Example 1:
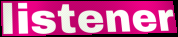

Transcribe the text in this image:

listener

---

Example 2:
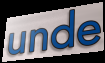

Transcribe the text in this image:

unde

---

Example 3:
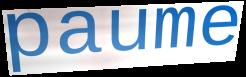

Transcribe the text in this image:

paume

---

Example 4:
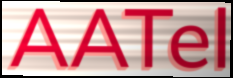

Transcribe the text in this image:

AATel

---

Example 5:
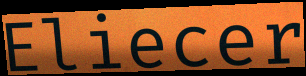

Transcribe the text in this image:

Eliecer